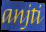
anjti